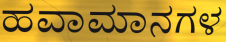
ಹವಾಮಾನಗಳ